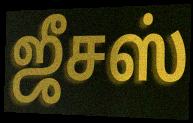
ஜீசஸ்